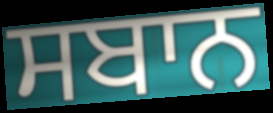
ਸਬਾਨ